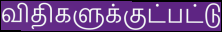
விதிகளுக்குட்பட்டு